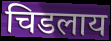
चिडलाय